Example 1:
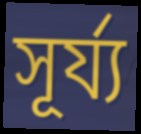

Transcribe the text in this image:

সূর্য্য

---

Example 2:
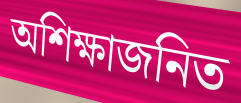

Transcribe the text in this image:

অশিক্ষাজনিত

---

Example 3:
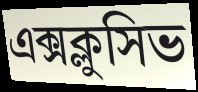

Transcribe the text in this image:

এক্সক্লুসিভ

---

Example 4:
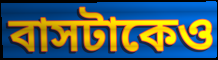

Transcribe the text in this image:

বাসটাকেও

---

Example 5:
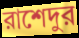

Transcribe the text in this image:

রাশেদুর